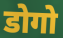
डोगो